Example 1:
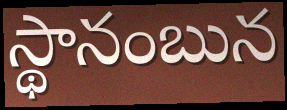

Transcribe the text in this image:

స్థానంబున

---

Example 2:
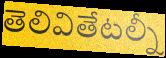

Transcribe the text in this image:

తెలివితేటల్నీ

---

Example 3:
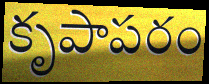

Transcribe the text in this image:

కృపాపరం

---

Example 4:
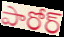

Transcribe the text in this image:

పారోర్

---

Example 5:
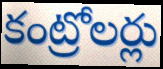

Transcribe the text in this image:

కంట్రోలర్లు